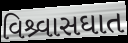
વિશ્ર્વાસઘાત